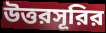
উত্তরসূরির